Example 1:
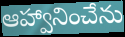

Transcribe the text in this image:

ఆహ్వానించేను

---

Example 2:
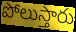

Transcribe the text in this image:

పోలుస్తారు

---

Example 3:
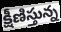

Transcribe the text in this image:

క్షీణిస్తున్న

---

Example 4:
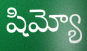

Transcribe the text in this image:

షిమ్యో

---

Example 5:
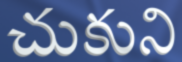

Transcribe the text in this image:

చుకుని